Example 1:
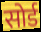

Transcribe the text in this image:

सोर्ड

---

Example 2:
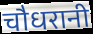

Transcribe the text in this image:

चौधरानी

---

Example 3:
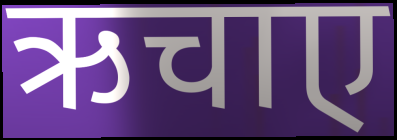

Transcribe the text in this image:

ऋचाए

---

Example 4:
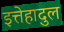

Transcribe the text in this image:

इत्तेहादुल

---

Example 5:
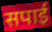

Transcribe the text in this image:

सपाई